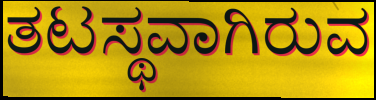
ತಟಸ್ಥವಾಗಿರುವ